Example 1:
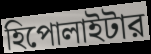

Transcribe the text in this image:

হিপোলাইটার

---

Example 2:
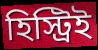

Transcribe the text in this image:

হিস্ট্রিই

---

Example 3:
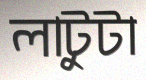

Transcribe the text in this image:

লাটুটা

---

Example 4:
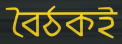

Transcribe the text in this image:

বৈঠকই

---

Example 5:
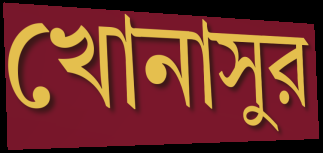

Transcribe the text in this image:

খোনাসুর